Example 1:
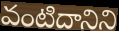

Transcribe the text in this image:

వంటిదానిని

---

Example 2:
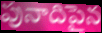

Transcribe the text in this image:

పునాదిపైన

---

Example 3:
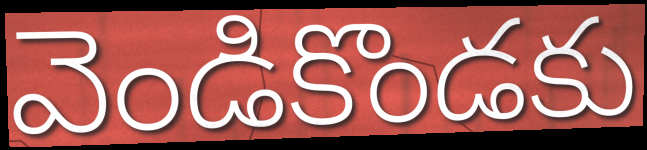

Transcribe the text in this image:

వెండికొండకు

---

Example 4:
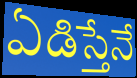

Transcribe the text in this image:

ఏడిస్తేనే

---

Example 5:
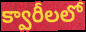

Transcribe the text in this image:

క్వారీలలో